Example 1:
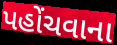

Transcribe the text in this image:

પહોંચવાના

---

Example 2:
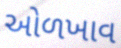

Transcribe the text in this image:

ઓળખાવ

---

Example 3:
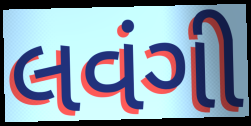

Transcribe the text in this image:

લવંગી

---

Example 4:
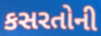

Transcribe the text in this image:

કસરતોની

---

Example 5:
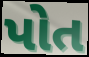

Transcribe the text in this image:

પોત